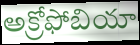
అక్రోఫోబియా